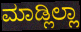
ಮಾಡ್ಲಿಲ್ಲಾ